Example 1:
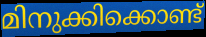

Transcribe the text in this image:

മിനുക്കിക്കൊണ്ട്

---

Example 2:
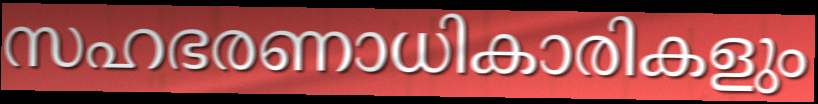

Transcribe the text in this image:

സഹഭരണാധികാരികളും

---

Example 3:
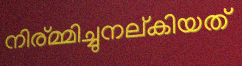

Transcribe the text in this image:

നിര്മ്മിച്ചുനല്കിയത്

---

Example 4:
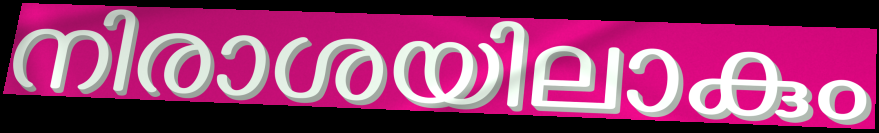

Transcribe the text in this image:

നിരാശയിലാകും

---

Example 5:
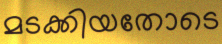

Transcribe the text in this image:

മടക്കിയതോടെ